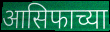
आसिफाच्या